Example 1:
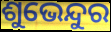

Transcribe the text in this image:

ଶୁଭେନ୍ଦୁର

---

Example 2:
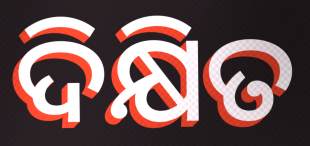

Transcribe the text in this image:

ଦିକ୍ଷିତ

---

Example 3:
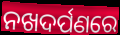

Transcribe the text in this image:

ନଖଦର୍ପଣରେ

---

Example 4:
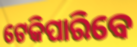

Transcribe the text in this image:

ଟେକିପାରିବେ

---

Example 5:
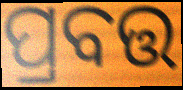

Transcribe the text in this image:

ପ୍ରବତ୍ତ